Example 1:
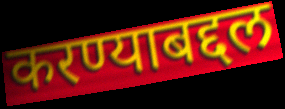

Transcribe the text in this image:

करण्याबद्दल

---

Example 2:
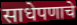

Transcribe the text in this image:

साधेपणाचे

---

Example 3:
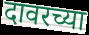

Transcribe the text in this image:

दावरच्या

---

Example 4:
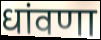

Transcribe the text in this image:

धांवणा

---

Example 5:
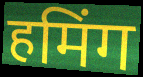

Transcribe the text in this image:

हमिंग